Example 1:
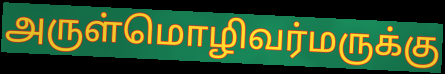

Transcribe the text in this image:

அருள்மொழிவர்மருக்கு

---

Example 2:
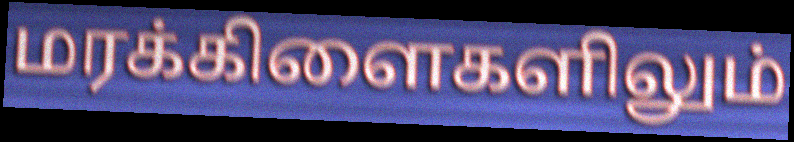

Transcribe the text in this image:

மரக்கிளைகளிலும்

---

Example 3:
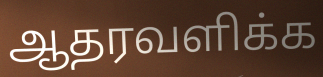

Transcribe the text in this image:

ஆதரவளிக்க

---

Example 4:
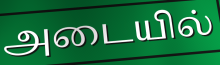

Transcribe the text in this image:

அடையில்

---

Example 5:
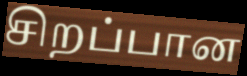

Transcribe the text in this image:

சிறப்பான